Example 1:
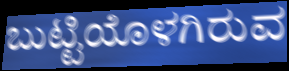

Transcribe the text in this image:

ಬುಟ್ಟಿಯೊಳಗಿರುವ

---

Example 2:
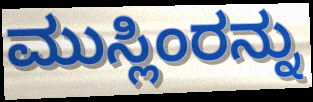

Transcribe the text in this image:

ಮುಸ್ಲಿಂರನ್ನು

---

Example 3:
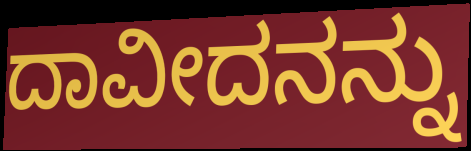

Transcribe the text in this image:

ದಾವೀದನನ್ನು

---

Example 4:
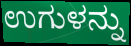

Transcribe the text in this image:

ಉಗುಳನ್ನು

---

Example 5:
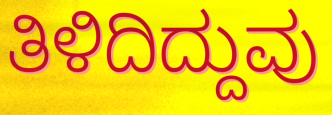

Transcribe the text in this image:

ತಿಳಿದಿದ್ದುವು